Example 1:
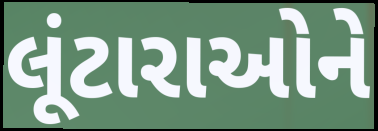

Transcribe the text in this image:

લૂંટારાઓને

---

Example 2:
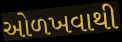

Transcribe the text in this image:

ઓળખવાથી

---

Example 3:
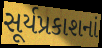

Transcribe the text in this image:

સૂર્યપ્રકાશનાં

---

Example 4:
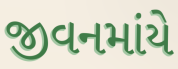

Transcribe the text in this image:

જીવનમાંયે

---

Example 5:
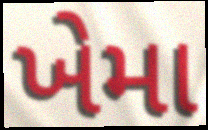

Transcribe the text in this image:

ખેમા